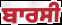
ਬਾਰਸੀ